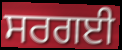
ਸਰਗਈ